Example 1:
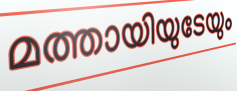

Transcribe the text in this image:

മത്തായിയുടേയും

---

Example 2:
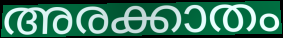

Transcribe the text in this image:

അരക്കാതം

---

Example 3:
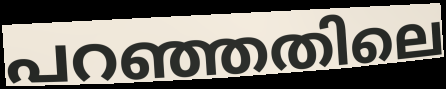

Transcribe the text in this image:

പറഞ്ഞതിലെ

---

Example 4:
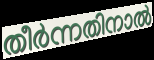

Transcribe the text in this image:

തീർന്നതിനാൽ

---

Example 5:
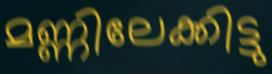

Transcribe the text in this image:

മണ്ണിലേക്കിട്ടു